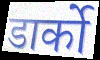
डार्को